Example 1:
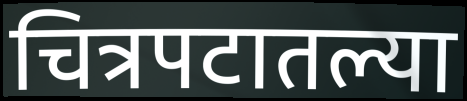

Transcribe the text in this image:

चित्रपटातल्या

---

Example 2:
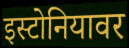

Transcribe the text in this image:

इस्टोनियावर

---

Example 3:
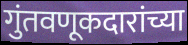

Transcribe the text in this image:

गुंतवणूकदारांच्या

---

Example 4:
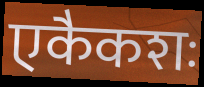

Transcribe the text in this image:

एकैकशः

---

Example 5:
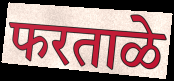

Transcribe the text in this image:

फरताळे